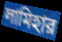
লামিহার